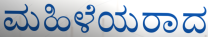
ಮಹಿಳೆಯರಾದ